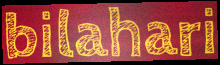
bilahari